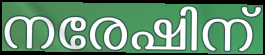
നരേഷിന്